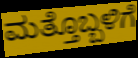
ಮತ್ತೊಬ್ಬಳಿಗೆ